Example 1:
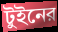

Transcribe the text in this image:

টুইনের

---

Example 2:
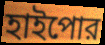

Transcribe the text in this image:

হাইপোর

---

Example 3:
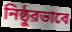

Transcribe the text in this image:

নিষ্ঠুরভাবে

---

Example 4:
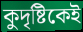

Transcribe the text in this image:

কুদৃষ্টিকেই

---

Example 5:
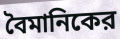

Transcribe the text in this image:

বৈমানিকের